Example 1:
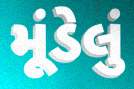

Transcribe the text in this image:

મૂંડેલું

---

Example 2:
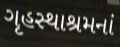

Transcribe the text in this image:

ગૃહસ્થાશ્રમનાં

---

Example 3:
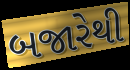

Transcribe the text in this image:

બજારેથી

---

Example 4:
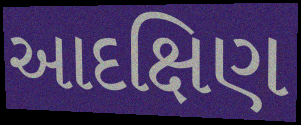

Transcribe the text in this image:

આદક્ષિણ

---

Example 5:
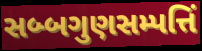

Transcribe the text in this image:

સબ્બગુણસમ્પત્તિં